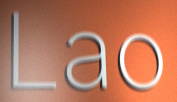
Lao